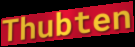
Thubten